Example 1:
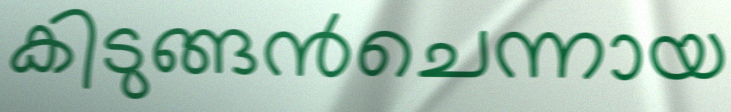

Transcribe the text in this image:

കിടുങ്ങൻചെന്നായ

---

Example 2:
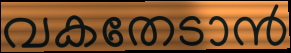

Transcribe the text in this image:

വകതേടാൻ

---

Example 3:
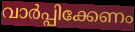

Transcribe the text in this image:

വാർപ്പിക്കേണം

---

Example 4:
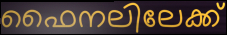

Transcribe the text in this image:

ഫൈനലിലേക്ക്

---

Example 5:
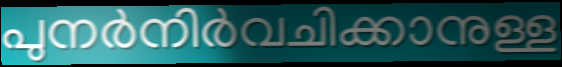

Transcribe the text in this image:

പുനർനിർവചിക്കാനുള്ള